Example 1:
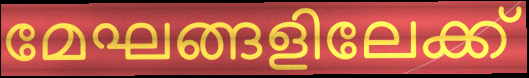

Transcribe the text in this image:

മേഘങ്ങളിലേക്ക്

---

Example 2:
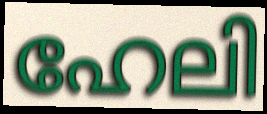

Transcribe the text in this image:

ഹേലി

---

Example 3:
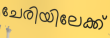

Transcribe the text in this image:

ചേരിയിലേക്ക്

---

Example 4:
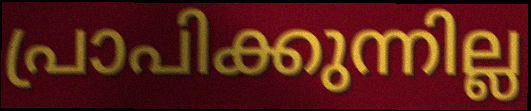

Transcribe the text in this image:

പ്രാപിക്കുന്നില്ല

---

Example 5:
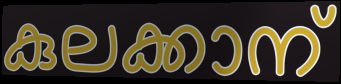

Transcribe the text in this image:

കുലക്കാന്